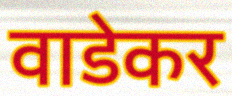
वाडेकर